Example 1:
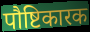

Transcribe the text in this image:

पौष्टिकारक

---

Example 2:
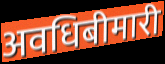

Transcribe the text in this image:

अवधिबीमारी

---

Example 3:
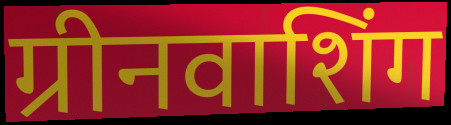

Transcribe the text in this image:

ग्रीनवाशिंग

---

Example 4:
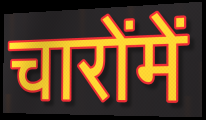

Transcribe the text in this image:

चारोंमें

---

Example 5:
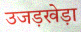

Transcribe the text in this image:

उजड़खेड़ा